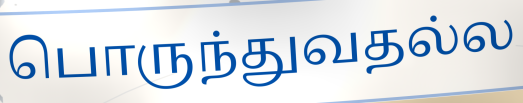
பொருந்துவதல்ல